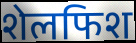
शेलफिश